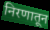
निरणातून